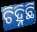
ଚିହ୍ନିଛି